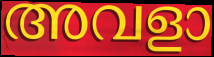
അവളാ